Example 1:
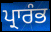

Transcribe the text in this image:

ਪ੍ਰਾਰੰਭ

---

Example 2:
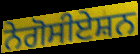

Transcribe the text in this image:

ਨੇਗੋਸੀਏਸ਼ਨ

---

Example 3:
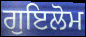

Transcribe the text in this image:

ਗੁਇਲੋਮ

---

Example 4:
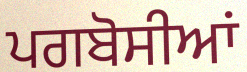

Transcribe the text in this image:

ਪਗਬੋਸੀਆਂ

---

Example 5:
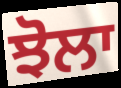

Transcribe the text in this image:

ਝੋਲਾ